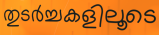
തുടർച്ചകളിലൂടെ